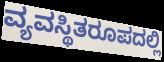
ವ್ಯವಸ್ಥಿತರೂಪದಲ್ಲಿ